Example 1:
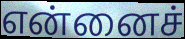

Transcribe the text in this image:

என்னைச்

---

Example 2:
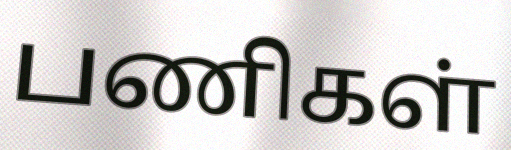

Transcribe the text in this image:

பணிகள்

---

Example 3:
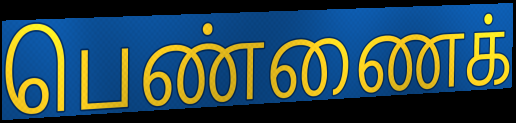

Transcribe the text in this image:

பெண்ணைக்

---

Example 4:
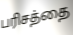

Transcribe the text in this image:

பரிசத்தை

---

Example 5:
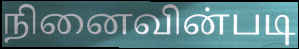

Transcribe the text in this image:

நினைவின்படி